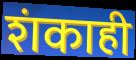
शंकाही